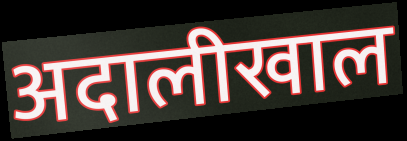
अदालीखाल